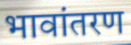
भावांतरण